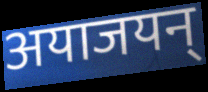
अयाजयन्